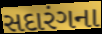
સદારંગના